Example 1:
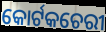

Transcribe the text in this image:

କୋର୍ଟକଚେରୀ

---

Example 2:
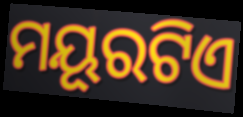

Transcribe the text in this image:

ମୟୂରଟିଏ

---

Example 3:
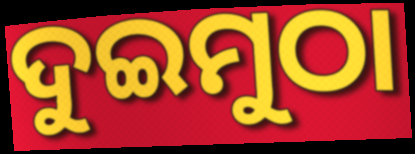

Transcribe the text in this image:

ଦୁଇମୁଠା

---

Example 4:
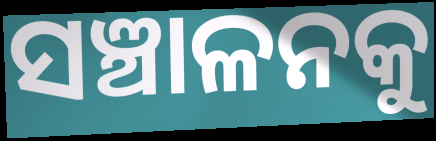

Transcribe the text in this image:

ସଞ୍ଚାଳନକୁ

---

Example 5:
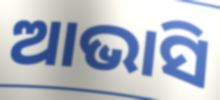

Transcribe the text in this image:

ଆଭାସି